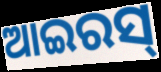
ଆଇରସ୍